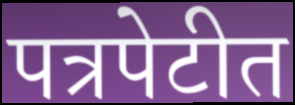
पत्रपेटीत